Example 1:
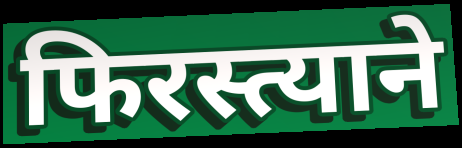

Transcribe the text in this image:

फिरस्त्याने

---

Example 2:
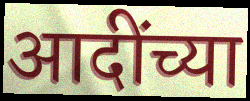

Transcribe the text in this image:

आदींच्या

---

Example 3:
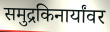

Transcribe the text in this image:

समुद्रकिनार्यांवर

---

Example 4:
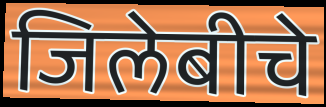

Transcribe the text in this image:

जिलेबीचे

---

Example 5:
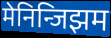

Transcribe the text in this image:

मेनिन्जिझम